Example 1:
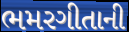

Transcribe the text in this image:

ભમરગીતાની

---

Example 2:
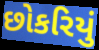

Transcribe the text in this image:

છોકરિયું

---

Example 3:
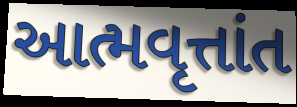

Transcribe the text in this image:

આત્મવૃત્તાંત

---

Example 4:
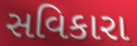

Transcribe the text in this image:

સવિકારા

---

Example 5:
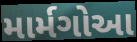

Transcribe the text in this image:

માર્મગોઆ